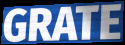
GRATE